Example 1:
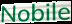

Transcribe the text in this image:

Nobile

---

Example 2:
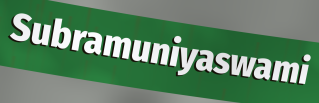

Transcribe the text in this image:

Subramuniyaswami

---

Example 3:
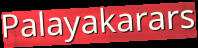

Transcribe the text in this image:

Palayakarars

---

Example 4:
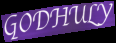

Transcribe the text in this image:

GODHULY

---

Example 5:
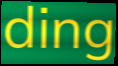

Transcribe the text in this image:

ding